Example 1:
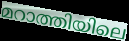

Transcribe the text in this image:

മറാത്തിയിലെ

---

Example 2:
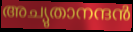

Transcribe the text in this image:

അച്യുതാനന്ദൻ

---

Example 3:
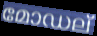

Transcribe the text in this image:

മോഡല്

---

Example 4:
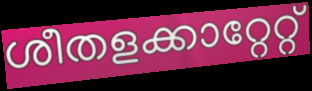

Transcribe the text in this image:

ശീതളക്കാറ്റേറ്റ്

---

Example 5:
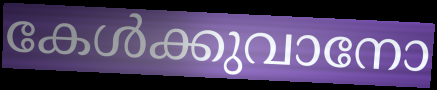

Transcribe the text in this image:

കേൾക്കുവാനോ